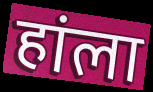
हांला